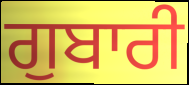
ਗੁਬਾਰੀ